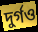
দুর্গও